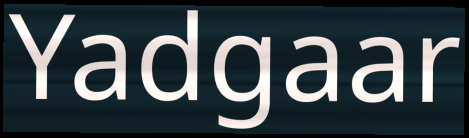
Yadgaar